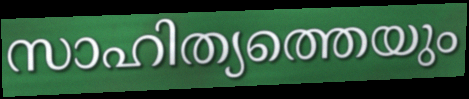
സാഹിത്യത്തെയും